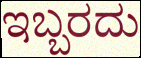
ಇಬ್ಬರದು